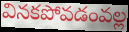
వినకపోవడంవల్ల